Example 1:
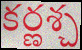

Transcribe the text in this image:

కర్ణశ్చ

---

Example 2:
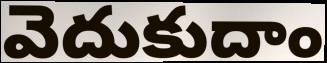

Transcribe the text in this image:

వెదుకుదాం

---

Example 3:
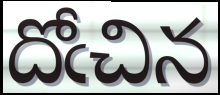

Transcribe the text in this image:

దోఁచిన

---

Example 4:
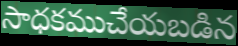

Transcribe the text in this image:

సాధకముచేయబడిన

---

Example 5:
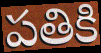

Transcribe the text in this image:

పతికి